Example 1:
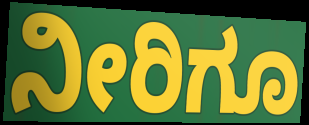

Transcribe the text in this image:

ನೀರಿಗೂ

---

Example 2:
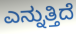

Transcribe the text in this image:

ಎನ್ನುತ್ತಿದೆ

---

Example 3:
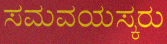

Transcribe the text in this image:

ಸಮವಯಸ್ಕರು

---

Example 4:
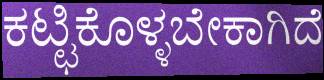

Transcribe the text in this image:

ಕಟ್ಟಿಕೊಳ್ಳಬೇಕಾಗಿದೆ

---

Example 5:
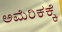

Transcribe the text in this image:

ಅಮೆರಿಕಕ್ಕೆ